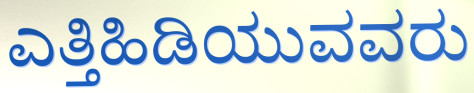
ಎತ್ತಿಹಿಡಿಯುವವರು